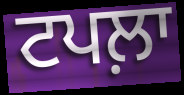
ਟਪਲ਼ਾ